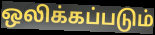
ஒலிக்கப்படும்